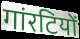
गांरटियों